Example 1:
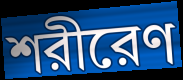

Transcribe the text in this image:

শরীরেণ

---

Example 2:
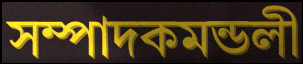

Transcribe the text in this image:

সম্পাদকমন্ডলী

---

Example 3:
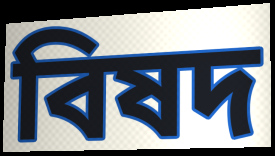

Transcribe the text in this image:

বিষদ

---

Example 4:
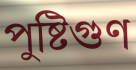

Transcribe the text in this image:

পুষ্টিগুণ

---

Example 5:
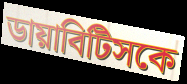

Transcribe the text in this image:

ডায়াবিটিসকে